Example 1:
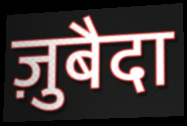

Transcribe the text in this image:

ज़ुबैदा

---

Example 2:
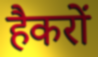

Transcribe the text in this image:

हैकरों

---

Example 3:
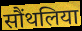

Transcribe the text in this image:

सौंथलिया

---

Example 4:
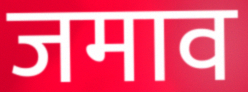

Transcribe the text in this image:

जमाव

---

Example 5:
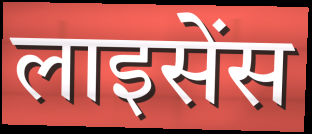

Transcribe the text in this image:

लाइसेंस